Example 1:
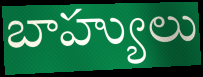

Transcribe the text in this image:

బాహ్యులు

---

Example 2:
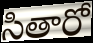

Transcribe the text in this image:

సితారో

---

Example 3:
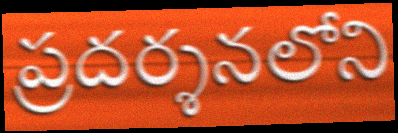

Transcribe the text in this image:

ప్రదర్శనలోని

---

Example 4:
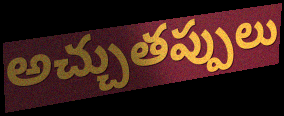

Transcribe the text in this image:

అచ్చుతప్పులు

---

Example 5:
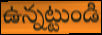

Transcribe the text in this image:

ఉన్నట్టుండి